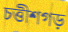
চত্তীশগড়